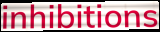
inhibitions